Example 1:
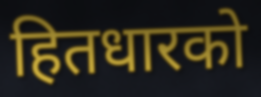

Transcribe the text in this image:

हितधारको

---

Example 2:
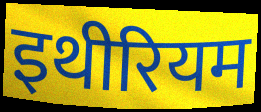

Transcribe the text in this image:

इथीरियम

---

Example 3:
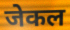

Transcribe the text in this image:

जेकल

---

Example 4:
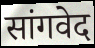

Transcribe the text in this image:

सांगवेद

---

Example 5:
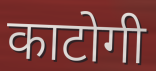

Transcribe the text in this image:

काटोगी